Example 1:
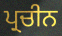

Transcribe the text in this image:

ਪ੍ਰਚੀਨ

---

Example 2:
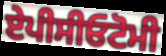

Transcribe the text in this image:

ਏਪੀਸੀਓਟੋਮੀ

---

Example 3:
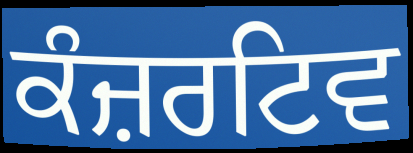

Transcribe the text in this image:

ਕੰਜ਼ਰਟਿਵ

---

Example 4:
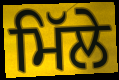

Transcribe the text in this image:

ਮਿੱਲੇ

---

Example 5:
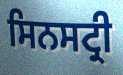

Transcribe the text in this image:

ਸਿਨਸਟ੍ਰੀ